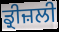
ਡ੍ਰੀਜ਼ਲੀ